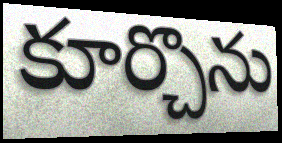
కూర్చొను